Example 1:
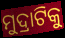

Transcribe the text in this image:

ମୁଦ୍ରାଟିକୁ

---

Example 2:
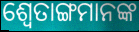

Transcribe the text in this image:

ଶ୍ଵେତାଙ୍ଗମାନଙ୍କ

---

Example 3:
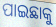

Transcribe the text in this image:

ପାଇଛାକୁ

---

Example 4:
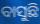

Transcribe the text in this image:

ବାସୁଛି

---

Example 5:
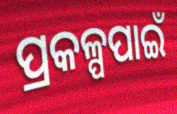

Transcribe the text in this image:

ପ୍ରକଳ୍ପପାଇଁ